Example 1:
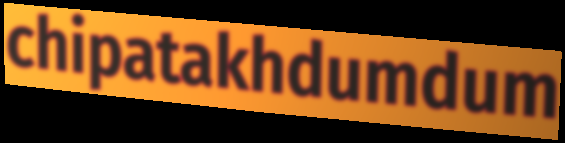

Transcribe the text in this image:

chipatakhdumdum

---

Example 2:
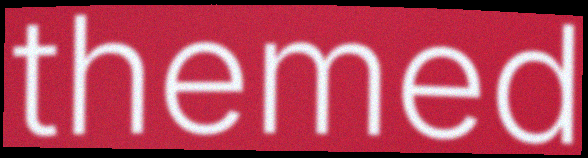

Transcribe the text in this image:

themed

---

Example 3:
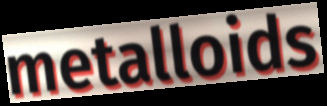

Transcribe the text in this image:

metalloids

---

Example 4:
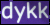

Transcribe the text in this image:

dykk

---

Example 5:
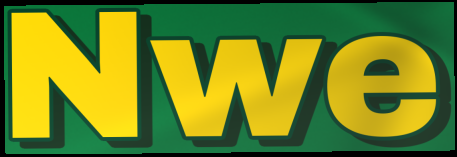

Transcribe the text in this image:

Nwe